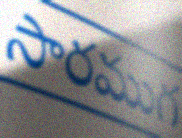
సారముగ